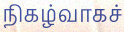
நிகழ்வாகச்